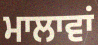
ਮਾਲਾਵਾਂ